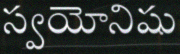
స్వయోనిషు